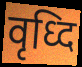
वृध्दि